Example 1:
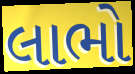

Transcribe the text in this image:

લાભો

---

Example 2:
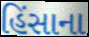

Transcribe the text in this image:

હિંસાના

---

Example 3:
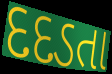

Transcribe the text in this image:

દદડતા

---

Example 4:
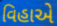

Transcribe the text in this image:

વિહાએ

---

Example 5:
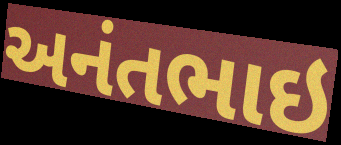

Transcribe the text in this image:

અનંતભાઇ